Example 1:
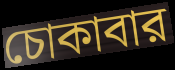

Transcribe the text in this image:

চোকাবার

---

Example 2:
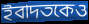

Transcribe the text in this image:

ইবাদতকেও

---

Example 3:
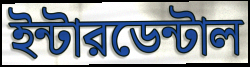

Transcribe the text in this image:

ইন্টারডেন্টাল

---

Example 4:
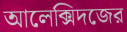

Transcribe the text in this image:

আলেক্সিদজের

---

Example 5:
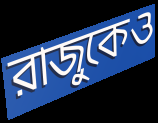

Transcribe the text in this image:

রাজুকেও